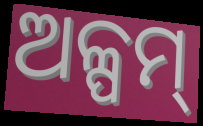
ଅଳ୍ପମ୍